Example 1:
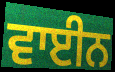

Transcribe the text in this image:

ਵਾਈਨ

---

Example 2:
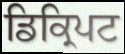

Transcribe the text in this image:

ਡਿਕ੍ਰਿਪਟ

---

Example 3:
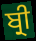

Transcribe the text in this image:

ਬ੍ਰੀ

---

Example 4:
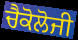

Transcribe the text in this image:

ਚੈਕੋਲੋਜੀ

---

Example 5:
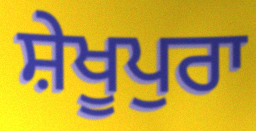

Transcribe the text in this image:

ਸ਼ੇਖੂਪੁਰਾ